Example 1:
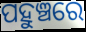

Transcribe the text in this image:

ପହୁଞ୍ଚରେ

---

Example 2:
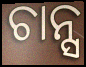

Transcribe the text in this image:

ଚାନ୍ସ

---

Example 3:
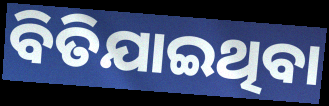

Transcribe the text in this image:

ବିତିଯାଇଥିବା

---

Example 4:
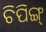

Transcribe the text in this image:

ଚିପିଙ୍ଗ୍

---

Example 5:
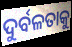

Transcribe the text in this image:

ଦୁର୍ବଳତାକୁ